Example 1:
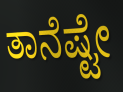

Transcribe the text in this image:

ತಾನೆಷ್ಟೇ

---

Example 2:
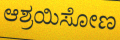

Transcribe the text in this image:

ಆಶ್ರಯಿಸೋಣ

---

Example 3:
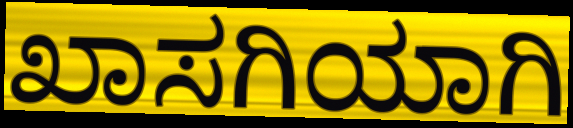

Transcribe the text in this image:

ಖಾಸಗಿಯಾಗಿ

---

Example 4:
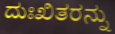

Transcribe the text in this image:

ದುಃಖಿತರನ್ನು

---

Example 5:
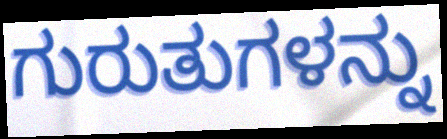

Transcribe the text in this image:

ಗುರುತುಗಳನ್ನು